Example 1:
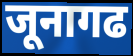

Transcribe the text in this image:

जूनागढ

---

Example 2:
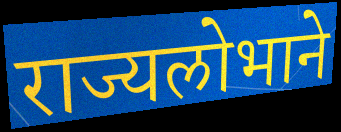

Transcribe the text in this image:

राज्यलोभाने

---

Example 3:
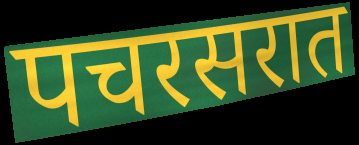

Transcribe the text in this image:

पचरसरात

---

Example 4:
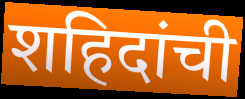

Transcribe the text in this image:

शहिदांची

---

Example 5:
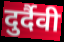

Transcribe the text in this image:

दुर्दैवी